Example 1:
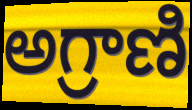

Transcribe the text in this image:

అగ్రాణి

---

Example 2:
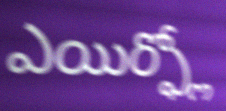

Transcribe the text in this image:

ఎయిర్ఫ్లో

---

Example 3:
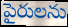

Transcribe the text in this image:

పైరులను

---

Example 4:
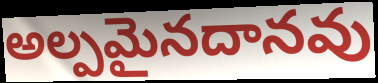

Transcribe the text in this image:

అల్పమైనదానవు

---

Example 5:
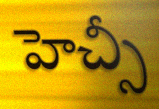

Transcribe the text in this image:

హెచ్సీ